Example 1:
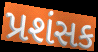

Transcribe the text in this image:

પ્રશંસક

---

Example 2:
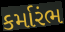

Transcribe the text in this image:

કર્મારંભ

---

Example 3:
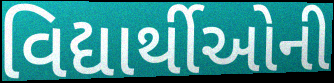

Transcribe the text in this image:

વિદ્યાર્થીઓની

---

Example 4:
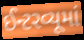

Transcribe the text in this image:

ઈન્ટરવ્યૂમાં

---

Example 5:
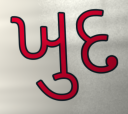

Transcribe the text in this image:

ખુદ